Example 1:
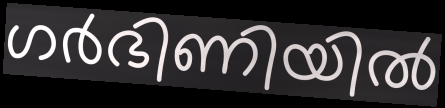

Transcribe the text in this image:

ഗർഭിണിയിൽ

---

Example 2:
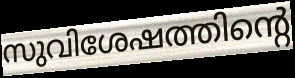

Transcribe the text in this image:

സുവിശേഷത്തിന്റെ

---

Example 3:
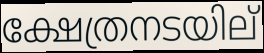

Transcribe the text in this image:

ക്ഷേത്രനടയില്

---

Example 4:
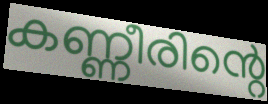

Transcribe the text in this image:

കണ്ണീരിന്റെ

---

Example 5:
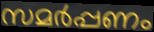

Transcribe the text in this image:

സമർപ്പണം